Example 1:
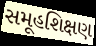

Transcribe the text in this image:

સમૂહશિક્ષણ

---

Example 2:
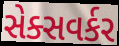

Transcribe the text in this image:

સેક્સવર્કર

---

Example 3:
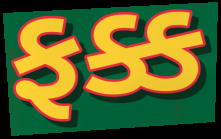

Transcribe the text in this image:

ફક્ક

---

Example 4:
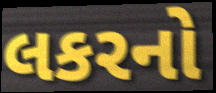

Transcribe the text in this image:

લકરનો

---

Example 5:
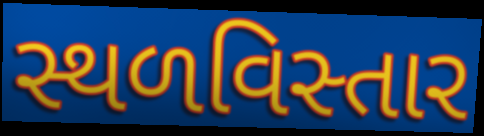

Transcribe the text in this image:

સ્થળવિસ્તાર